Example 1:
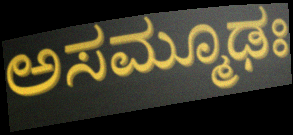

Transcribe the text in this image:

ಅಸಮ್ಮೂಢಃ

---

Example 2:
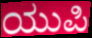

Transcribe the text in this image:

ಯುಪಿ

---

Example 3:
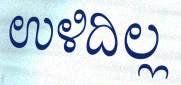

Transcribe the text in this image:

ಉಳಿದಿಲ್ಲ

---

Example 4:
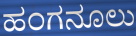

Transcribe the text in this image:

ಹಂಗನೂಲು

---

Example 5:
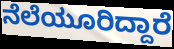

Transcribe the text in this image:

ನೆಲೆಯೂರಿದ್ದಾರೆ